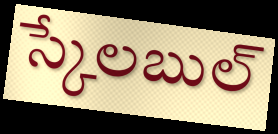
స్కేలబుల్